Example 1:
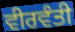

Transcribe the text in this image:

ਵੀਰਵੰਤੀ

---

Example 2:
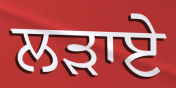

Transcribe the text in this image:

ਲੜਾਏ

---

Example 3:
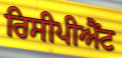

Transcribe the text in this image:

ਰਿਸੀਪੀਐਂਟ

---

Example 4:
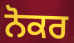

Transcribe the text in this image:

ਨੋਕਰ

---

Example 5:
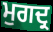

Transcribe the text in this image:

ਮੁਗਦ੍ਰ